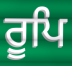
ਰੂਪਿ